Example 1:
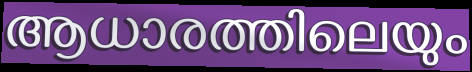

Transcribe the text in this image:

ആധാരത്തിലെയും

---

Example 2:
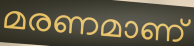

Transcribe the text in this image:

മരണമാണ്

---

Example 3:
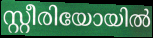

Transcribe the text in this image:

സ്റ്റീരിയോയിൽ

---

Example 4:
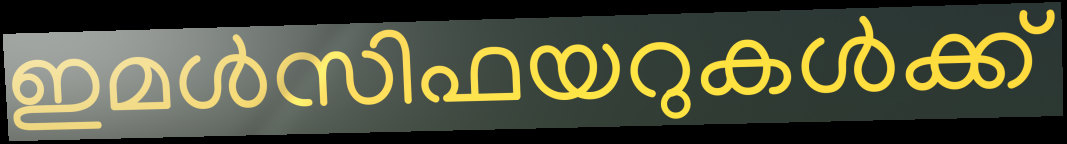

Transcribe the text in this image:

ഇമൾസിഫയറുകൾക്ക്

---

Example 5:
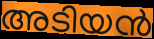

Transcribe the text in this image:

അടിയൻ